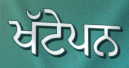
ਖੱਟੇਪਨ